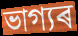
ভাগ্যৰ